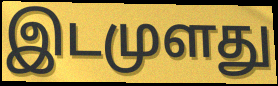
இடமுளது